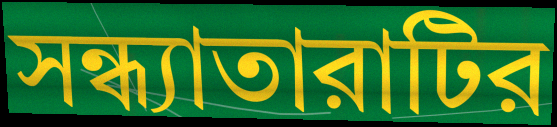
সন্ধ্যাতারাটির